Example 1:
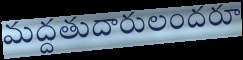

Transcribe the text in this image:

మద్దతుదారులందరూ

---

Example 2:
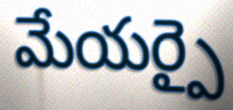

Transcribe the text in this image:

మేయర్పై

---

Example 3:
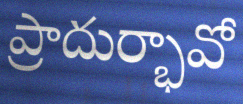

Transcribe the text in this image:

ప్రాదుర్భావో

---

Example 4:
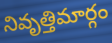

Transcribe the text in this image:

నివృత్తిమార్గం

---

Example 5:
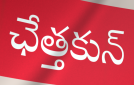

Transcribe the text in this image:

ఛేత్తకున్